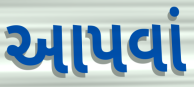
આપવાં